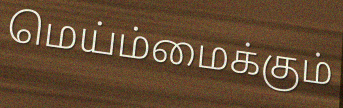
மெய்ம்மைக்கும்